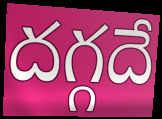
దగ్గదే